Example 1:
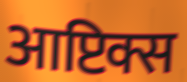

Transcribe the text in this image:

आप्टिक्स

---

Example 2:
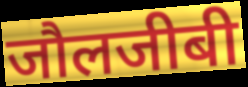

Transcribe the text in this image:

जौलजीबी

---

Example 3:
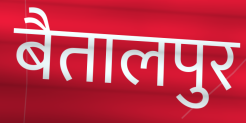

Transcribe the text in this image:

बैतालपुर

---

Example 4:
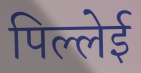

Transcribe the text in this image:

पिल्लेई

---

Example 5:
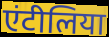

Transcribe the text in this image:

एंटीलिया